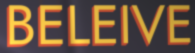
BELEIVE